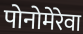
पोनोमेरेवा